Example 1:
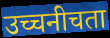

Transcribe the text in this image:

उच्चनीचता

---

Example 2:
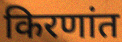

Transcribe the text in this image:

किरणांत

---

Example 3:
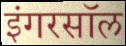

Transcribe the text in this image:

इंगरसॉल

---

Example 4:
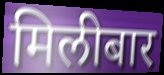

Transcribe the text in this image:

मिलीबार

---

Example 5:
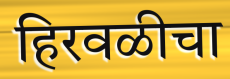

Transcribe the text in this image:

हिरवळीचा